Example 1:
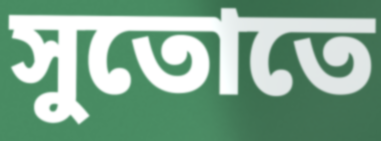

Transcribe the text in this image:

সুতোতে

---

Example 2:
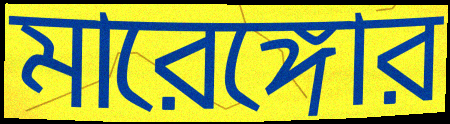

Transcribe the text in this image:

মারেঙ্গোর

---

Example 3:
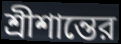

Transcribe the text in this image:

শ্রীশান্তের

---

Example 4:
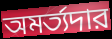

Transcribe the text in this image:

অমর্ত্যদার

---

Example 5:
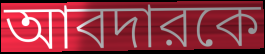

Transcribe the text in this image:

আবদারকে